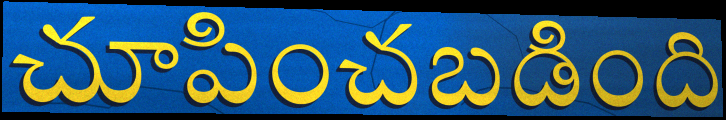
చూపించబడింది